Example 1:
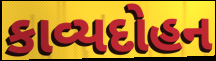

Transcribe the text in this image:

કાવ્યદોહન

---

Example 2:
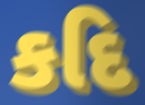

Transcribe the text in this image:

કદિ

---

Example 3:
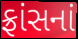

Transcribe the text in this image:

ફ્રાંસનાં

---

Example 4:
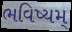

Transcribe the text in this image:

ભવિષ્યમ્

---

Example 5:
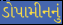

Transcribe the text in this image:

ડોપામીનનું